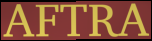
AFTRA